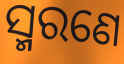
ସ୍ମରଣେ